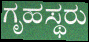
ಗೃಹಸ್ಥರು